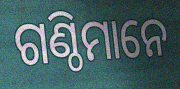
ଗଣ୍ଠିମାନେ